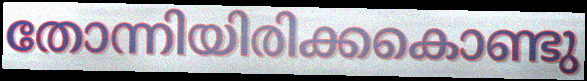
തോന്നിയിരിക്കകൊണ്ടു